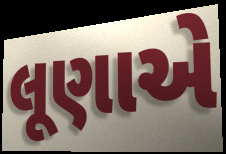
લૂણાએ